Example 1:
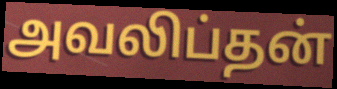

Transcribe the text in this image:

அவலிப்தன்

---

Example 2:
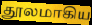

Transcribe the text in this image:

தூலமாகிய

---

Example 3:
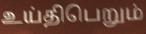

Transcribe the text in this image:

உய்திபெறும்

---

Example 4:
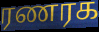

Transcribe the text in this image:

ரணரக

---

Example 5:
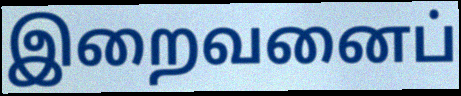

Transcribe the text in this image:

இறைவனைப்